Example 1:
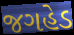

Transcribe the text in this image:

જગહેડ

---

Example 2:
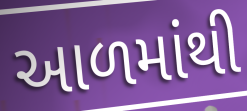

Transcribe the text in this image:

આળમાંથી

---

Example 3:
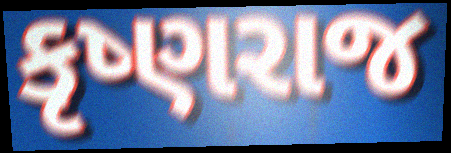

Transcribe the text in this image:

કૃષ્ણરાજ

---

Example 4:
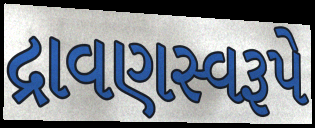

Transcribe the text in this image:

દ્રાવણસ્વરૂપે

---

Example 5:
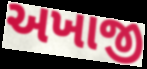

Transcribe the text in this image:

અખાજી